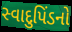
સ્વાદુપિંડનો